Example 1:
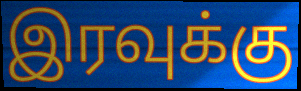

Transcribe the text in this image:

இரவுக்கு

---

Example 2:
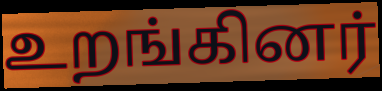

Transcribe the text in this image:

உறங்கினர்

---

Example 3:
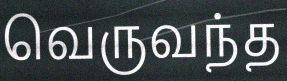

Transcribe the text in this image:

வெருவந்த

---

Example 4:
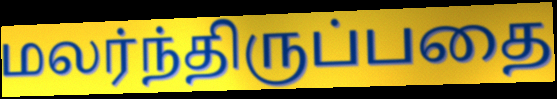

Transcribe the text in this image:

மலர்ந்திருப்பதை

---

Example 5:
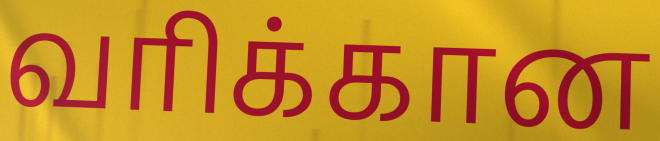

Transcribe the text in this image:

வரிக்கான